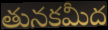
తునకమీద